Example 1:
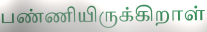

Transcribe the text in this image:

பண்ணியிருக்கிறாள்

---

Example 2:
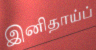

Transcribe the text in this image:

இனிதாய்ப்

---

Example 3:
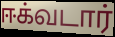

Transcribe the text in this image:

ஈக்வடார்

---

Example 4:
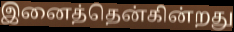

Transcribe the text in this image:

இனைத்தென்கின்றது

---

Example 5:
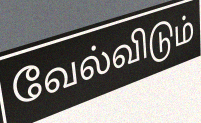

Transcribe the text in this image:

வேல்விடும்